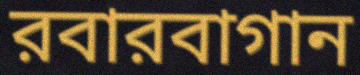
রবারবাগান